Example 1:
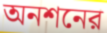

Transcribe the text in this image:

অনশনের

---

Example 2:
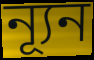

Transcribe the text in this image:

ন্যূন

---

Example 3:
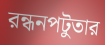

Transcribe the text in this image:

রন্ধনপটুতার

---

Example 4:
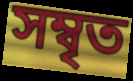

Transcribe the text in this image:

সম্বৃত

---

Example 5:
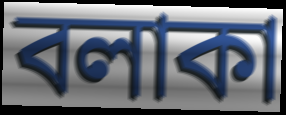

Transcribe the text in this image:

বলাকা